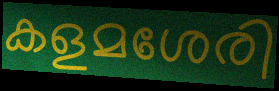
കളമശേരി